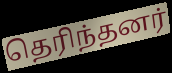
தெரிந்தனர்